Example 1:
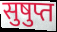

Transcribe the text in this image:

सुषुप्त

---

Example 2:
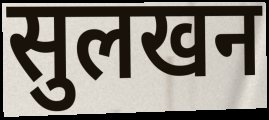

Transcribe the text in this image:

सुलखन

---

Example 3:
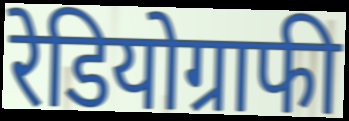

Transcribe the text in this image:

रेडियोग्राफी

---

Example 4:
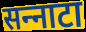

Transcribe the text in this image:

सन्‍नाटा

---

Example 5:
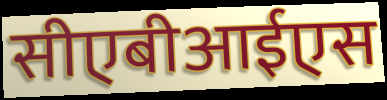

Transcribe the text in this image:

सीएबीआईएस